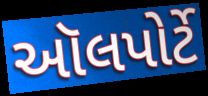
ઑલપોર્ટે